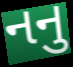
નનુ